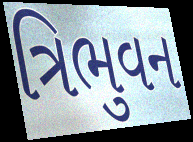
ત્રિભુવન